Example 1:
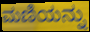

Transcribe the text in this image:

ಮಣಿಯನ್ನು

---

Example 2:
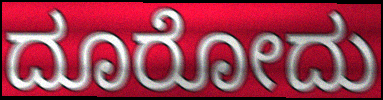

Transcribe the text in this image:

ದೂರೋದು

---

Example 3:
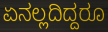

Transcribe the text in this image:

ಏನಲ್ಲದಿದ್ದರೂ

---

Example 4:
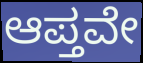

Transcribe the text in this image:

ಆಪ್ತವೇ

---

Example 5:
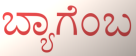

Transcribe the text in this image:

ಬ್ಯಾಗೆಂಬ